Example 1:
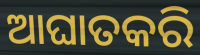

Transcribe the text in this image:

ଆଘାତକରି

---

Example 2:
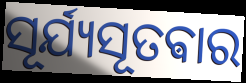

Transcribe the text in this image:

ସୂର୍ଯ୍ଯସୂତଵାର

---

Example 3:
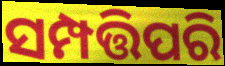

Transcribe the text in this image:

ସମ୍ପତ୍ତିପରି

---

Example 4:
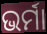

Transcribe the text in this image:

ଭର୍ମା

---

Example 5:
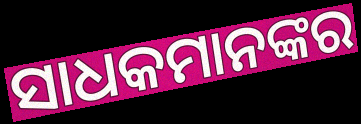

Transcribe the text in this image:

ସାଧକମାନଙ୍କର